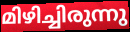
മിഴിച്ചിരുന്നു